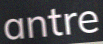
antre